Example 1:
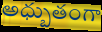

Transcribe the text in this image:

అధ్బుతంగా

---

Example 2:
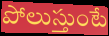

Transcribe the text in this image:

పోలుస్తుంటే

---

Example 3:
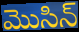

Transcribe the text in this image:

మొసిన్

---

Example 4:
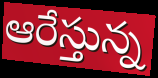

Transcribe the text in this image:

ఆరేస్తున్న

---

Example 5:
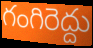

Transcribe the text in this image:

గంగిరెద్దు